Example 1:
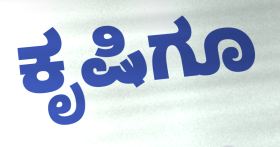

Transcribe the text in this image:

ಕೃಷಿಗೂ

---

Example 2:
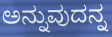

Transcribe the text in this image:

ಅನ್ನುವುದನ್ನ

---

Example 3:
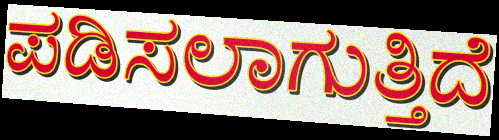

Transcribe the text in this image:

ಪಡಿಸಲಾಗುತ್ತಿದೆ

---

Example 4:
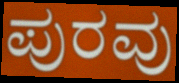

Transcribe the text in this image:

ಪುರವು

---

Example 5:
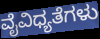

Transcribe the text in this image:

ವೈವಿಧ್ಯತೆಗಳು